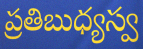
ప్రతిబుధ్యస్వ